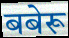
बबेरू